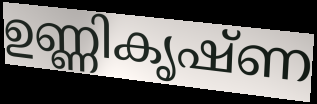
ഉണ്ണികൃഷ്ണ